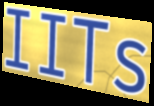
IITs